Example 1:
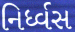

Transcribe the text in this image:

નિર્ધ્વસ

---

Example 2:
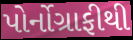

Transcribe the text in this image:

પોર્નોગ્રાફીથી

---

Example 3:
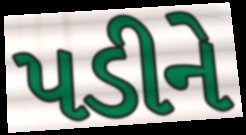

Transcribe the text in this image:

પડીને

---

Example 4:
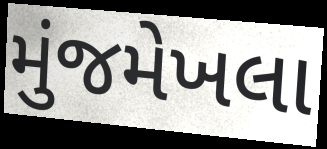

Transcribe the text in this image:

મુંજમેખલા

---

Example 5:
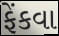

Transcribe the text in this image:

ફેંકવા